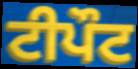
ਟੀਪੌਟ